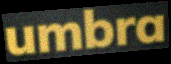
umbra